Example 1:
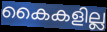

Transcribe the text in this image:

കൈകളില്ല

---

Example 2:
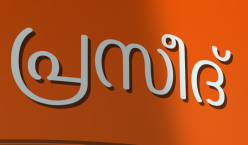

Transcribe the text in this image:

പ്രസീദ്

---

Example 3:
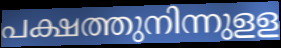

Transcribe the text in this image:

പക്ഷത്തുനിന്നുളള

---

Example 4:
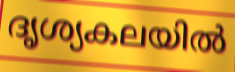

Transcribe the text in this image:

ദൃശ്യകലയിൽ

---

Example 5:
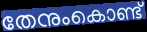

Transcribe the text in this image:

തേനുംകൊണ്ട്